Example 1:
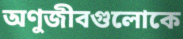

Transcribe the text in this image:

অণুজীবগুলোকে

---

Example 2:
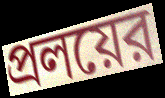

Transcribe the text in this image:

প্রলয়ের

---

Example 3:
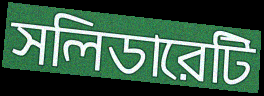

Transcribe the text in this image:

সলিডারেটি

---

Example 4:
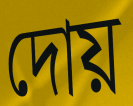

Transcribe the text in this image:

দোয়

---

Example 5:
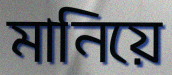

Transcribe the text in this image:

মানিয়ে